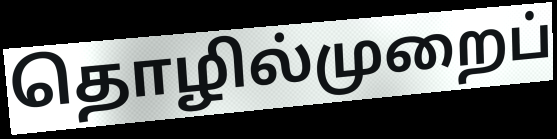
தொழில்முறைப்